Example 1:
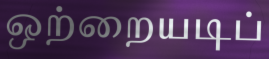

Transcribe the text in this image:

ஒற்றையடிப்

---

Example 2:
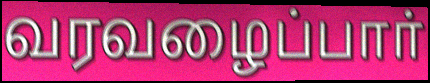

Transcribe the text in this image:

வரவழைப்பார்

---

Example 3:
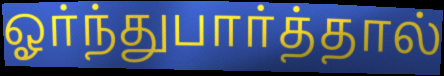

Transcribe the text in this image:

ஓர்ந்துபார்த்தால்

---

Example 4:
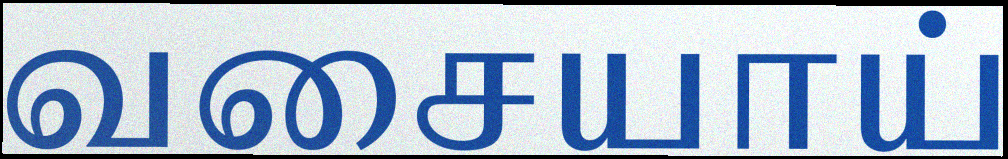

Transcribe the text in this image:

வசையாய்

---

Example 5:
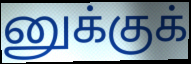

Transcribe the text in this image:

னுக்குக்